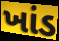
ખાંડ